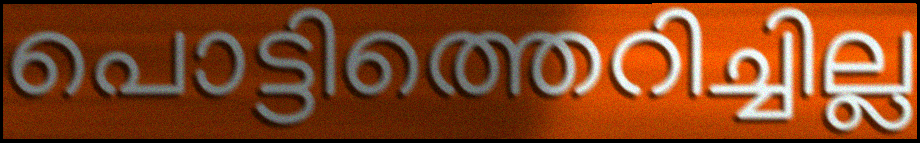
പൊട്ടിത്തെറിച്ചില്ല